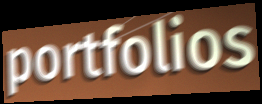
portfolios